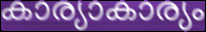
കാര്യാകാര്യം